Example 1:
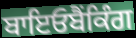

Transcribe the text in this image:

ਬਾਇਓਬੈਂਕਿੰਗ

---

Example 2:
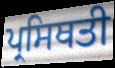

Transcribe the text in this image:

ਪ੍ਰਸਿਥਤੀ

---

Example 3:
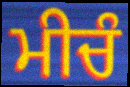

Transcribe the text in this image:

ਮੀਚੰ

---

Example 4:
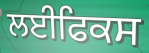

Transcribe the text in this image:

ਲਈਫਿਕਸ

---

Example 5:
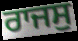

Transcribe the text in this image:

ਰਾਜਸੁ